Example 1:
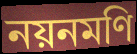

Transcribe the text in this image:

নয়নমণি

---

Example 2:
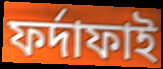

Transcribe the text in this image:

ফর্দাফাই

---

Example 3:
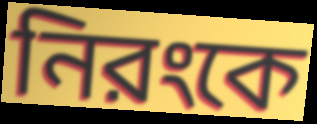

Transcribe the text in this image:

নিরংকে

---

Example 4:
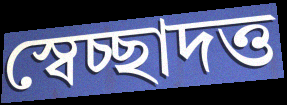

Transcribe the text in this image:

স্বেচ্ছাদত্ত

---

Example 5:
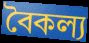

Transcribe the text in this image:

বৈকল্য